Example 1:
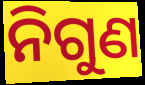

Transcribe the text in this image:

ନିଗୁଣ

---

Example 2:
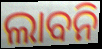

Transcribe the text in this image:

ଲାବନି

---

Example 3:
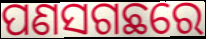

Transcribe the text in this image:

ପଣସଗଛରେ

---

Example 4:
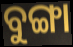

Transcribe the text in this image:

ବୁଙ୍ଗା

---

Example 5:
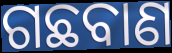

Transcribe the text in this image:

ଗଛବାଣ